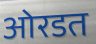
ओरडत